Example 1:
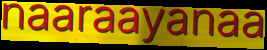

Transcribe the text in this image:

naaraayanaa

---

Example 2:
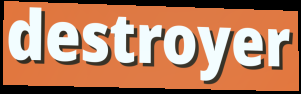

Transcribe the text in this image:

destroyer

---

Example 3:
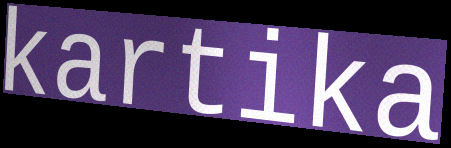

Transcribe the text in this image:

kartika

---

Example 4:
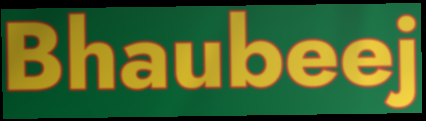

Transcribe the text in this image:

Bhaubeej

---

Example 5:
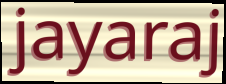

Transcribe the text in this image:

jayaraj